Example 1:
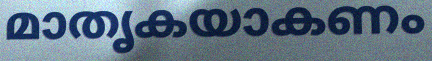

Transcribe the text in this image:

മാതൃകയാകണം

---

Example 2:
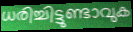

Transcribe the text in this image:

ധരിച്ചിട്ടുണ്ടാവുക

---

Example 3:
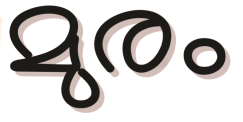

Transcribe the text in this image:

മുരം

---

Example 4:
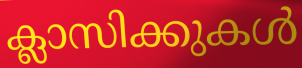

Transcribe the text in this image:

ക്ലാസിക്കുകൾ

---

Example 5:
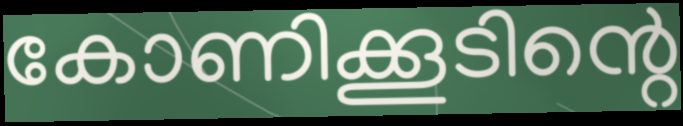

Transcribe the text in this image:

കോണിക്കൂടിന്റെ